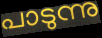
പാടുന്നു